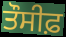
ਤੌਸੀਫ਼